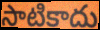
సాటికాదు